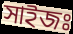
সাইজঃ